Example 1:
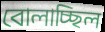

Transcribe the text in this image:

বোলাচ্ছিল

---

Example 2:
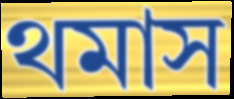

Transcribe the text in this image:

থমাস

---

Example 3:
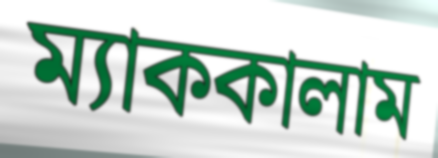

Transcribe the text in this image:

ম্যাককালাম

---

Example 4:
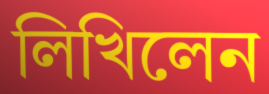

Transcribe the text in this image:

লিখিলেন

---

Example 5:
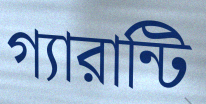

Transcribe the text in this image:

গ্যারান্টি